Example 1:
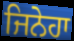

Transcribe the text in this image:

ਜਿਨੇਹਾ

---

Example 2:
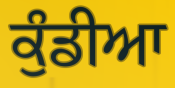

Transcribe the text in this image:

ਕੁੰਡੀਆ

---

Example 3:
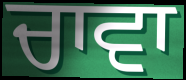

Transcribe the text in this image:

ਚਾਵਾ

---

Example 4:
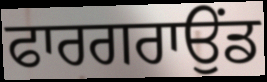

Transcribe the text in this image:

ਫਾਰਗਰਾਉਂਡ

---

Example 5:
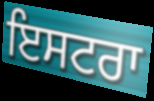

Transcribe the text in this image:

ਇਸਟਰਾ